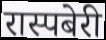
रास्पबेरी